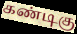
கண்டிகு